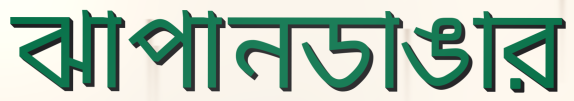
ঝাপানডাঙার